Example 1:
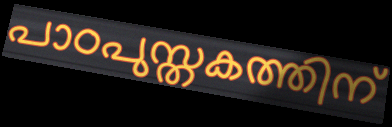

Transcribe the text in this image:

പാഠപുസ്തകത്തിന്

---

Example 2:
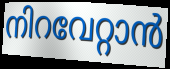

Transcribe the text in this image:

നിറവേറ്റാൻ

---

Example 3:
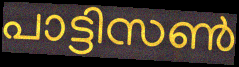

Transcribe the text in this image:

പാട്ടിസൺ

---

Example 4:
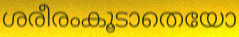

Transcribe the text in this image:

ശരീരംകൂടാതെയോ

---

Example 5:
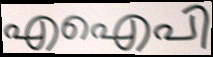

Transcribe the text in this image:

എഐപി